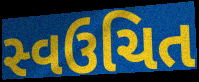
સ્વઉચિત